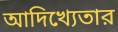
আদিখ্যেতার